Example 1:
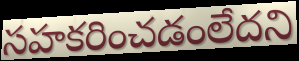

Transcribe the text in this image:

సహకరించడంలేదని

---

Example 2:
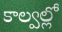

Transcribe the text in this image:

కాల్వల్లో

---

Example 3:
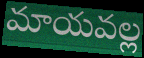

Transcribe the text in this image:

మాయవల్ల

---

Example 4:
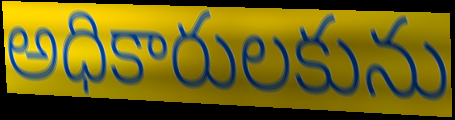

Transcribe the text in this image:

అధికారులకును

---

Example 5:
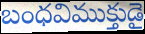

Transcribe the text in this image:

బంధవిముక్తుడై